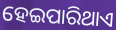
ହେଇପାରିଥାଏ